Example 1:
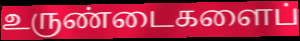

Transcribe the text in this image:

உருண்டைகளைப்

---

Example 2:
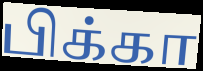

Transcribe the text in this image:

பிக்கா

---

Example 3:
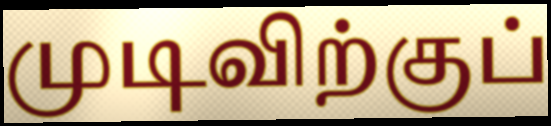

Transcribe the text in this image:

முடிவிற்குப்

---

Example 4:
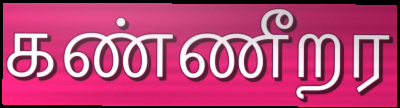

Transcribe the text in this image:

கண்ணீறர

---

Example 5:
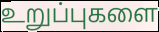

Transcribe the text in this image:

உறுப்புகளை